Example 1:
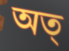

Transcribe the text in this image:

অত্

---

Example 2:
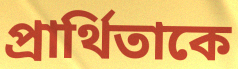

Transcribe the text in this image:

প্রার্থিতাকে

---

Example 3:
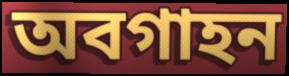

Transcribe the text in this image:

অবগাহন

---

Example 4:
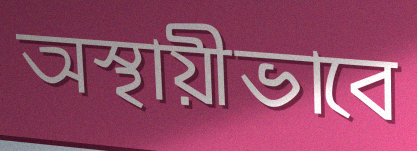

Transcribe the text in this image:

অস্থায়ীভাবে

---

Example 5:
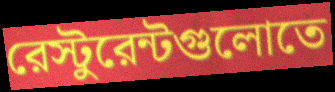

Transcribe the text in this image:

রেস্টুরেন্টগুলোতে